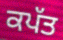
ਕਪੱਤ